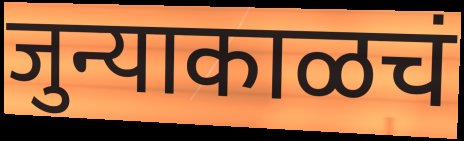
जुन्याकाळचं